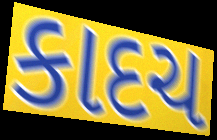
કાદચ